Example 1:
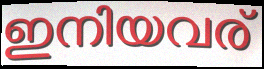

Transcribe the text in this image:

ഇനിയവര്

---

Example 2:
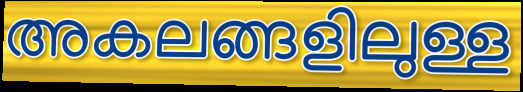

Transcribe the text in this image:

അകലങ്ങളിലുള്ള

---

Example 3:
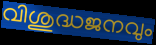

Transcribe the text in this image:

വിശുദ്ധജനവും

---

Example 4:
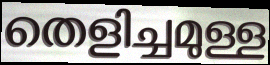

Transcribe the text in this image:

തെളിച്ചമുള്ള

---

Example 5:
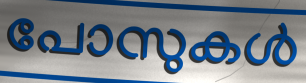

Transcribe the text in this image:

പോസുകൾ